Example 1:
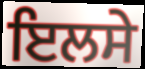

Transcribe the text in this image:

ਇਲਸੇ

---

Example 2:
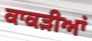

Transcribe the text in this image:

ਕਾਕੜੀਆਂ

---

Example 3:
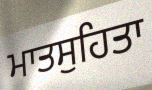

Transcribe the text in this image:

ਮਾਤਸੁਹਿਤਾ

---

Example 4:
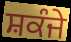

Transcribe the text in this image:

ਸ਼ਕੰਜੇ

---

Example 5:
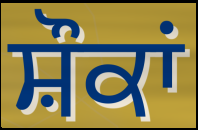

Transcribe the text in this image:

ਸ਼ੌਕਾਂ